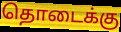
தொடைக்கு